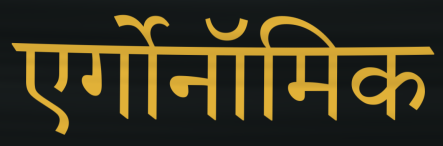
एर्गोनॉमिक